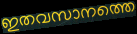
ഇതവസാനത്തെ